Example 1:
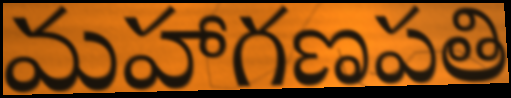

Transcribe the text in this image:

మహాగణపతి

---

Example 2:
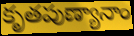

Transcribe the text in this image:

కృతపుణ్యానాం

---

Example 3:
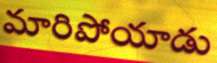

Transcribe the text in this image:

మారిపోయాడు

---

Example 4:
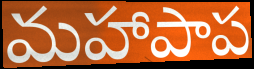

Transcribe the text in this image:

మహాపాప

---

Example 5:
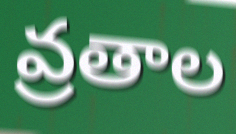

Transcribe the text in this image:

వ్రతాల